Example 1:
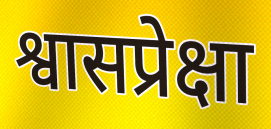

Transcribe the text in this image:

श्वासप्रेक्षा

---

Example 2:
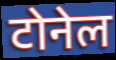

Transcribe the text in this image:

टोनेल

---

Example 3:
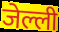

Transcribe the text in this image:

जेल्ली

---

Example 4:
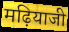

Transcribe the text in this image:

मढ़ियाजी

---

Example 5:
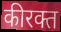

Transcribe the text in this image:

कीरक्त